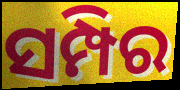
ସମ୍ପିର